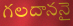
గలదాననై